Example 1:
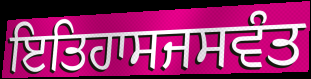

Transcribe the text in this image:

ਇਤਿਹਾਸਜਸਵੰਤ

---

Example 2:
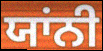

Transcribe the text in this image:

ਯਾਂਨੀ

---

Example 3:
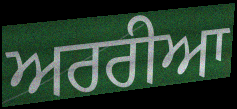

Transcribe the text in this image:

ਅਰਰੀਆ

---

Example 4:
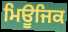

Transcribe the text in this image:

ਮਿਊਜਿਕ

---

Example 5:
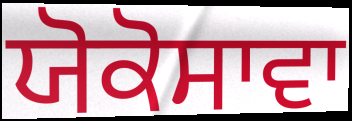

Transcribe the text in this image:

ਯੋਕੋਸਾਵਾ